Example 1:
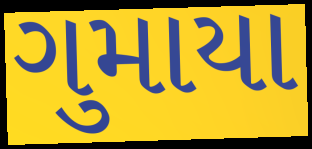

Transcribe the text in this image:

ગુમાયા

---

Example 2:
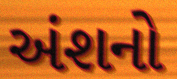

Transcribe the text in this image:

અંશનો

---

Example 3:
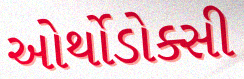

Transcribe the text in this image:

ઓર્થોડોક્સી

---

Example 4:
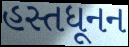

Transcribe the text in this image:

હસ્તધૂનન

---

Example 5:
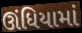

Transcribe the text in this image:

ઊંધિયામાં